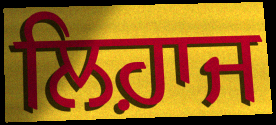
ਲਿਹ਼ਾਜ